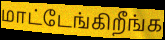
மாட்டேங்கிறீங்க